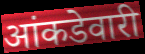
आंकडेवारी